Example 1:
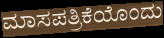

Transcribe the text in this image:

ಮಾಸಪತ್ರಿಕೆಯೊಂದು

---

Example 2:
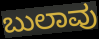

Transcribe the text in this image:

ಬುಲಾವು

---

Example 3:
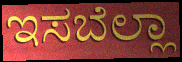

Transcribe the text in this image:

ಇಸಬೆಲ್ಲಾ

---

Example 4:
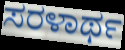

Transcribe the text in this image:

ಸರಳಾರ್ಥ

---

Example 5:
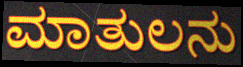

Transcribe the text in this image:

ಮಾತುಲನು